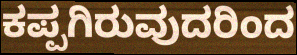
ಕಪ್ಪಗಿರುವುದರಿಂದ